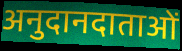
अनुदानदाताओं